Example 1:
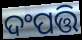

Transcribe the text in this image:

ଦଂପତ୍ତି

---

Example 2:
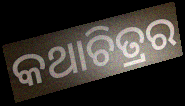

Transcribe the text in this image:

କଥାଚିତ୍ରର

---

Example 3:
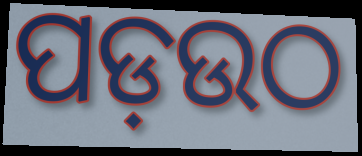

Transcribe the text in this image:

ପଡ଼ଉଠ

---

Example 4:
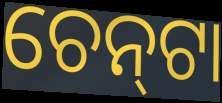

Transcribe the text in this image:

ଚେନ୍‌ଟା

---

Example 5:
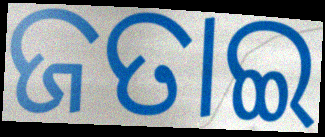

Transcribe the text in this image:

ଜତାଇ